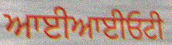
ਆਈਆਈਓਟੀ